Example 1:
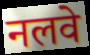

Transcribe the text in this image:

नलवे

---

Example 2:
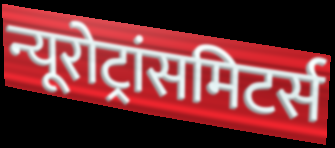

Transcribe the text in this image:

न्यूरोट्रांसमिटर्स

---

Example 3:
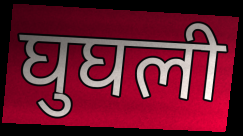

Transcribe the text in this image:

घुघली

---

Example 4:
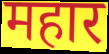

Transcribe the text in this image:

महार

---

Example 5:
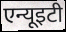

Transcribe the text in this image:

एन्यूइटी